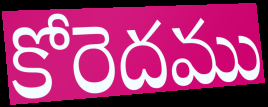
కోరెదము